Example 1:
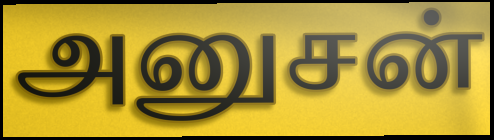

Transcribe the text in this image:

அனுசன்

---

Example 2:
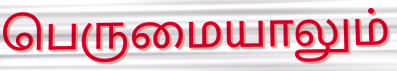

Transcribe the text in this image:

பெருமையாலும்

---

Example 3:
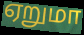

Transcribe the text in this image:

ஏறுமா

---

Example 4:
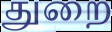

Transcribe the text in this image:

துறை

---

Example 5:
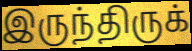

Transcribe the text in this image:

இருந்திருக்